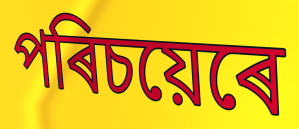
পৰিচয়েৰে